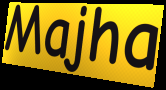
Majha